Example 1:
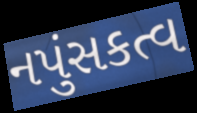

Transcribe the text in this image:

નપુંસકત્વ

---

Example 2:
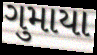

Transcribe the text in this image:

ગુમાયા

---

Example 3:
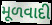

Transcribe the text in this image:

મૂળવાદી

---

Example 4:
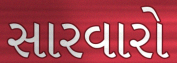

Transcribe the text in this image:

સારવારો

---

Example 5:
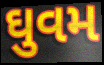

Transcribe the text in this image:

ઘુવમ